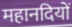
महानदियों